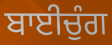
ਬਾਈਚੁੰਗ